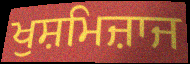
ਖੁਸ਼ਮਿਜ਼ਾਜ